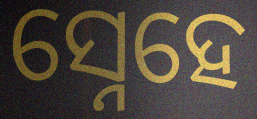
ସ୍ନେହେ